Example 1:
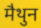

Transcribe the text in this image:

मैथुन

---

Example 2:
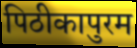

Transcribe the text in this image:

पिठीकापुरम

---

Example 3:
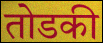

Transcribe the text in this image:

तोडकी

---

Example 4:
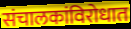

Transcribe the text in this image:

संचालकांविरोधात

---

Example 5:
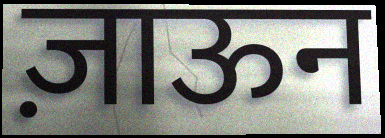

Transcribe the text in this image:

ज़ाऊन